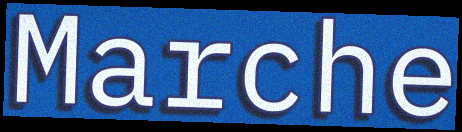
Marche